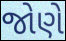
જોણે